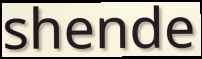
shende